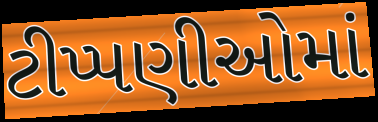
ટીપ્પણીઓમાં